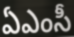
ఏఎంసీ